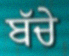
ਬੱਚੇ